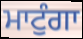
ਮਾਟੁੰਗਾ